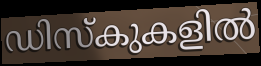
ഡിസ്കുകളിൽ